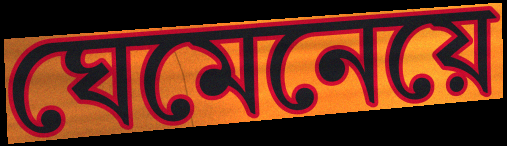
ঘেমেনেয়ে